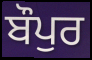
ਬੌਪੁਰ